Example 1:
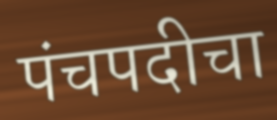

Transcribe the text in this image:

पंचपदीचा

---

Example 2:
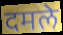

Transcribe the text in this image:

दमले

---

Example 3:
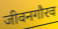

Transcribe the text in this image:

जीवनगौरव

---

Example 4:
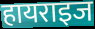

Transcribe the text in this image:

हायराइज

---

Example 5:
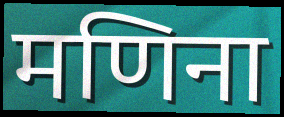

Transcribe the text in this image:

मणिना